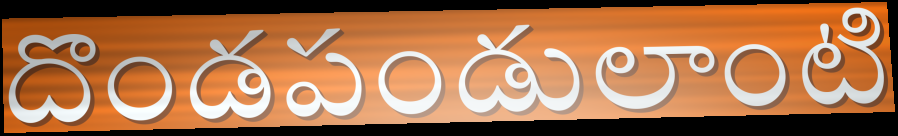
దొండపండులాంటి